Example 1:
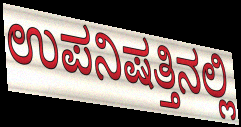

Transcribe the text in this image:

ಉಪನಿಷತ್ತಿನಲ್ಲಿ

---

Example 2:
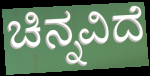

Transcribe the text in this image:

ಚಿನ್ನವಿದೆ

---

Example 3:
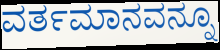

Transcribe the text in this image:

ವರ್ತಮಾನವನ್ನೂ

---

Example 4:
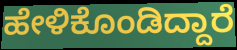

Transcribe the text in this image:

ಹೇಳಿಕೊಂಡಿದ್ದಾರೆ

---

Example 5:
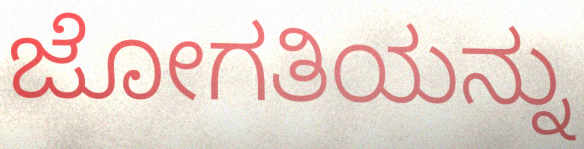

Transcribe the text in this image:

ಜೋಗತಿಯನ್ನು